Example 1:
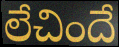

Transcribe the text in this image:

లేచిందే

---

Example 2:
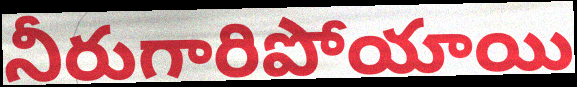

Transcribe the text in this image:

నీరుగారిపోయాయి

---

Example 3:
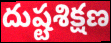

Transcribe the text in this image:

దుష్టశిక్షణ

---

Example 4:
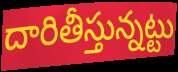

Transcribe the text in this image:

దారితీస్తున్నట్టు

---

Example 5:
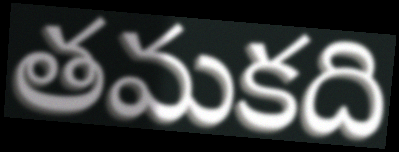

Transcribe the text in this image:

తమకది